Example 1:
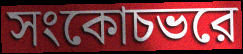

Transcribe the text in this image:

সংকোচভরে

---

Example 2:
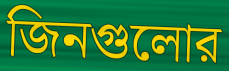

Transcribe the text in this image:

জিনগুলোর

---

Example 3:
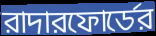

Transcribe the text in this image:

রাদারফোর্ডের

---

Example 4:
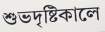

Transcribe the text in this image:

শুভদৃষ্টিকালে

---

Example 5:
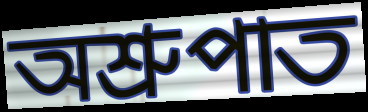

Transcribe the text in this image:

অশ্রুপাত